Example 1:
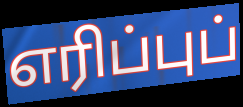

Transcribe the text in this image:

எரிப்புப்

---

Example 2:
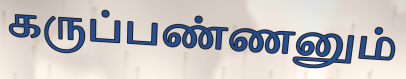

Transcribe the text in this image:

கருப்பண்ணனும்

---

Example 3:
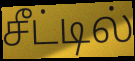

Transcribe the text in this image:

சீட்டில்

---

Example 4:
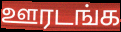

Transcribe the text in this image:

ஊரடங்க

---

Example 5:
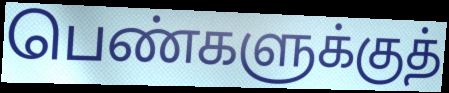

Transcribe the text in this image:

பெண்களுக்குத்